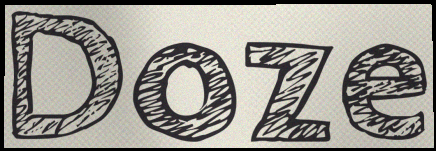
Doze